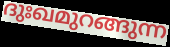
ദുഃഖമുറങ്ങുന്ന